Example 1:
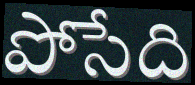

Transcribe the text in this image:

పోసేది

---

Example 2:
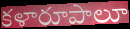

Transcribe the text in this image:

కళారూపాలూ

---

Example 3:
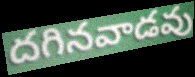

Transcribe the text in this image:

దగినవాడవు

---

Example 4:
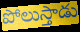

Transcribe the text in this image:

పోలుస్తాడు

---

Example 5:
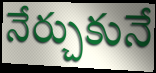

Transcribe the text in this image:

నేర్చుకునే